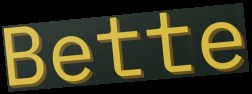
Bette